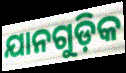
ଯାନଗୁଡ଼ିକ